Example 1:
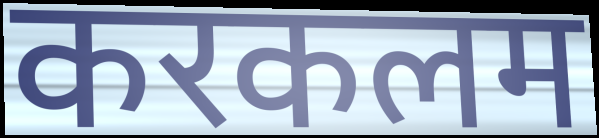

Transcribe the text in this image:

करकलम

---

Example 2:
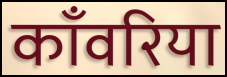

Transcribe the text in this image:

काँवरिया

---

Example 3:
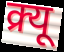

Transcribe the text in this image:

क्र्यू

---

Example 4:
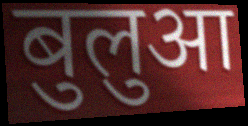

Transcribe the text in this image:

बुलुआ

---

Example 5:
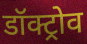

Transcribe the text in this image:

डॉक्ट्रोव